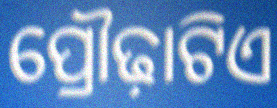
ପ୍ରୌଢ଼ାଟିଏ